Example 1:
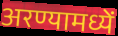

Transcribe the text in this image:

अरण्यामध्यें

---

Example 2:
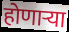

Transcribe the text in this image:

होणाऱ्या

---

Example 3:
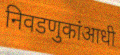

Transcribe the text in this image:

निवडणुकांआधी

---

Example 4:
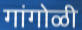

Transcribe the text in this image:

गांगोळी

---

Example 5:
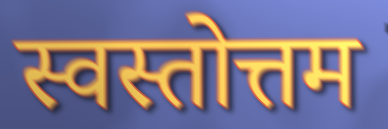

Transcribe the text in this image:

स्वस्तोत्तम